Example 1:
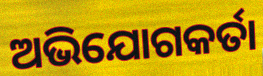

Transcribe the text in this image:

ଅଭିଯୋଗକର୍ତା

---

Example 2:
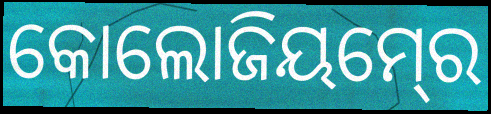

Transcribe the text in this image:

କୋଲୋଜିୟମ୍‍ରେ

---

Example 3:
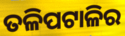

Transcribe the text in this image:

ତଳିପଟାଳିର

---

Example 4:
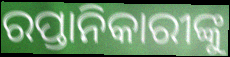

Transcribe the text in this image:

ରପ୍ତାନିକାରୀଙ୍କୁ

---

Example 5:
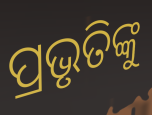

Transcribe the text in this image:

ପ୍ରଭୃତିଙ୍କୁ